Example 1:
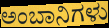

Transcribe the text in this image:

ಅಂಬಾನಿಗಳು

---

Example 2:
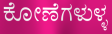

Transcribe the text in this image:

ಕೋಣೆಗಳುಳ್ಳ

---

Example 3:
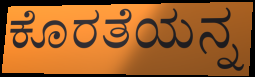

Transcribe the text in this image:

ಕೊರತೆಯನ್ನ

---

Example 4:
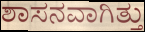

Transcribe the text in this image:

ಶಾಸನವಾಗಿತ್ತು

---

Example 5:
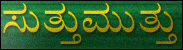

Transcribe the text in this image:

ಸುತ್ತುಮುತ್ತು